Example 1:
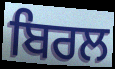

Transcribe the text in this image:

ਬਿਰਲ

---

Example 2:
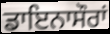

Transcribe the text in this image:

ਡਾਇਨਾਸੌਰਾਂ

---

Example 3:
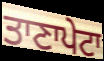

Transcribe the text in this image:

ਤਾਣਾਪੇਟਾ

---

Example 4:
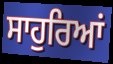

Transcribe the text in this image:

ਸਾਹੁਰਿਆਂ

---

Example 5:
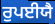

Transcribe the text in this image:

ਰੁਪਈਯੈ